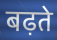
बढ़ते